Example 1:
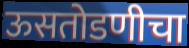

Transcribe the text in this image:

ऊसतोडणीचा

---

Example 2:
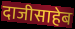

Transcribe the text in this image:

दाजीसाहेब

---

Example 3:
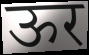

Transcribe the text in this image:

ऊर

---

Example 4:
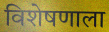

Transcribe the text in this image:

विशेषणाला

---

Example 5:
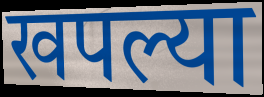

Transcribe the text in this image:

खपल्या